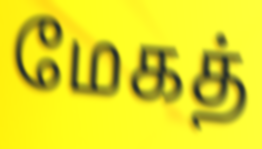
மேகத்